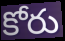
కోరు